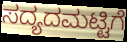
ಸದ್ಯದಮಟ್ಟಿಗೆ